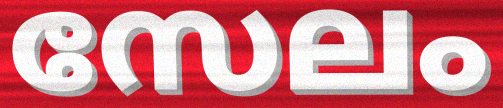
സേലം